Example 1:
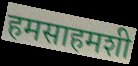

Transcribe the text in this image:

हमसाहमशी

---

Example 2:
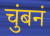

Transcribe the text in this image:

चुंबनं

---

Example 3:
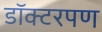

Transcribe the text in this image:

डॉक्टरपण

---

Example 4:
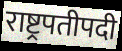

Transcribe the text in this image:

राष्ट्रपतीपदी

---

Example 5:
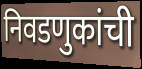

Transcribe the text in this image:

निवडणुकांची